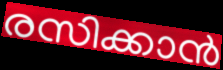
രസിക്കാൻ